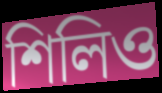
শিলিও